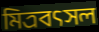
মিত্রবৎসল